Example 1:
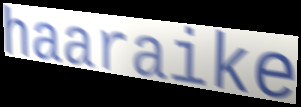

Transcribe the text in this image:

haaraike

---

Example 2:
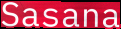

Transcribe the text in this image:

Sasana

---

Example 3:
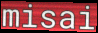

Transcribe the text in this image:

misai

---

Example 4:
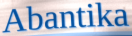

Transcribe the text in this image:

Abantika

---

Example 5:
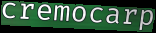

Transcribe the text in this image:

cremocarp